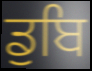
ਡੁਬਿ